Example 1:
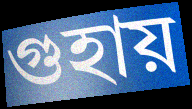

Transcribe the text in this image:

গুহায়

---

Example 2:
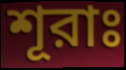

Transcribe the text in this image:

শূরাঃ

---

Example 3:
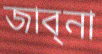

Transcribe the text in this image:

জাব্‌না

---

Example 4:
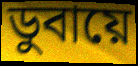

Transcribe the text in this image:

ডুবায়ে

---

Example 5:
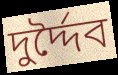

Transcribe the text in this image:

দুর্দ্দৈব